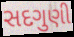
સદગુણી